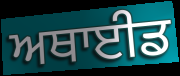
ਅਥਾਈਡ